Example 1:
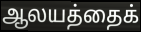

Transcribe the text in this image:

ஆலயத்தைக்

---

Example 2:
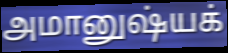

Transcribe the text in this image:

அமானுஷ்யக்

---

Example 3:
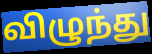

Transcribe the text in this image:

விழுந்து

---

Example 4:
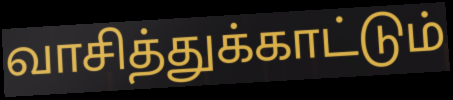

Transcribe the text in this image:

வாசித்துக்காட்டும்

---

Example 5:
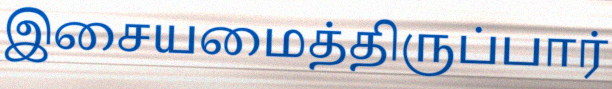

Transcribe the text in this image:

இசையமைத்திருப்பார்